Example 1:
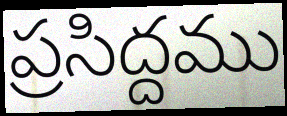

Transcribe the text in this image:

ప్రసిద్దము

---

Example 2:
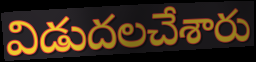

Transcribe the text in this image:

విడుదలచేశారు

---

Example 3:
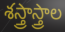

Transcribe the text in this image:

శస్త్రాస్త్రాల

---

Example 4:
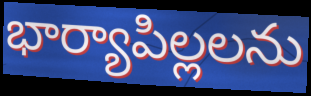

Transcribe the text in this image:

భార్యాపిల్లలను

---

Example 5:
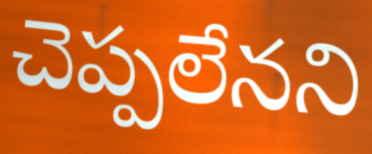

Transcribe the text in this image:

చెప్పలేనని